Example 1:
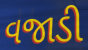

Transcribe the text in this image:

વજાડી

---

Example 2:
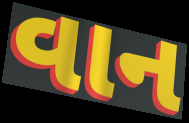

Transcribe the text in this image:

વાન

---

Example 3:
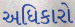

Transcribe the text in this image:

અધિકારો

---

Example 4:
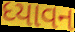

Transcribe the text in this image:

ધ્યાવન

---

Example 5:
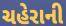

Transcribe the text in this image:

ચહેરાની